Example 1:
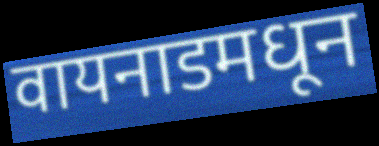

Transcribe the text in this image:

वायनाडमधून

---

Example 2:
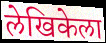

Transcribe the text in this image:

लेखिकेला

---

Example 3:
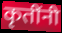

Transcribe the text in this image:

कृतींनी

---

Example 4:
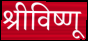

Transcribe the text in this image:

श्रीविष्णू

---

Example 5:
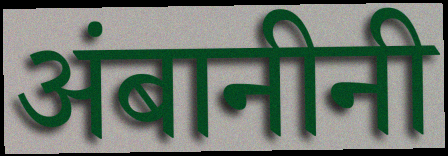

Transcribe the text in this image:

अंबानीनी